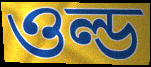
ওল্ড